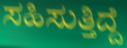
ಸಹಿಸುತ್ತಿದ್ದೆ